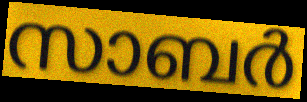
സാബർ